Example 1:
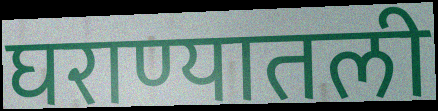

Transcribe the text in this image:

घराण्यातली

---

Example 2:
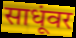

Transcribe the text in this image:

साधूंवर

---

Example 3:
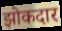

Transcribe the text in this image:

झोकदार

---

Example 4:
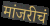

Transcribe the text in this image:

मांजरीचं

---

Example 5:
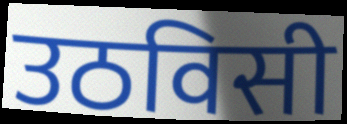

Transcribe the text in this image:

उठविसी